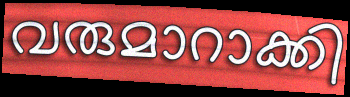
വരുമാറാക്കി